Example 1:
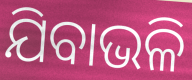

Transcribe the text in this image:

ଯିବାଭଳି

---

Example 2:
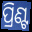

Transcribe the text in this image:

ପ୍ରିଣ୍ଟ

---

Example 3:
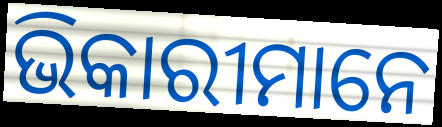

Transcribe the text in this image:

ଭିକାରୀମାନେ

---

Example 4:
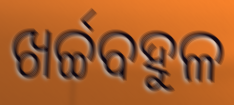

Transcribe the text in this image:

ଖର୍ଚ୍ଚବହୁଳ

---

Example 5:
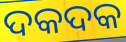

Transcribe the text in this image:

ଦକଦକ